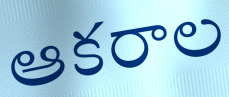
ఆకరాల